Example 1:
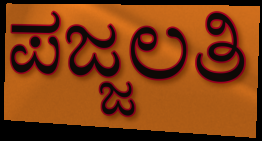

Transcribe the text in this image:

ಪಜ್ಜಲತಿ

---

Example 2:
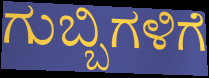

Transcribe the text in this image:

ಗುಬ್ಬಿಗಳಿಗೆ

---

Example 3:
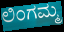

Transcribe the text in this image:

ಲಿಂಗಮ್ಮ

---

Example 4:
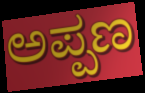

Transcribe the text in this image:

ಅಪ್ಪಣ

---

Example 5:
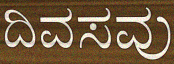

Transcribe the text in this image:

ದಿವಸವು